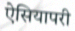
ऐसियापरी